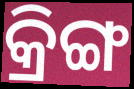
କ୍ରିଙ୍ଗ